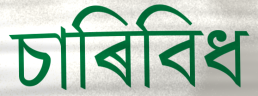
চাৰিবিধ